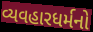
વ્યવહારધર્મનો